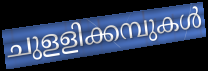
ചുളളിക്കമ്പുകൾ